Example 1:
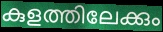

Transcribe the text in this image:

കുളത്തിലേക്കും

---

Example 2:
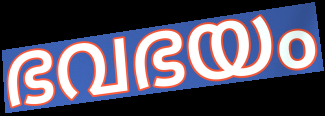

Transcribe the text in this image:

ഭവഭയം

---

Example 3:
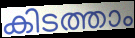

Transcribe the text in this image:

കിടത്താം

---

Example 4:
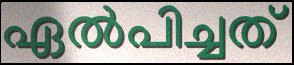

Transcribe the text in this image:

ഏൽപിച്ചത്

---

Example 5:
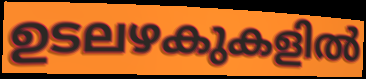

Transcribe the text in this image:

ഉടലഴകുകളിൽ